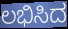
ಲಭಿಸಿದ